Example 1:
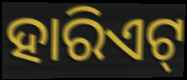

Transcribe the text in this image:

ହାରିଏଟ୍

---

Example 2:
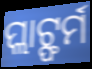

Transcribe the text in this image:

ପ୍ଲାଟ୍ଫର୍ମ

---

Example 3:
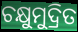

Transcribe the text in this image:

ଚକ୍ଷୁମୁଦ୍ରିତ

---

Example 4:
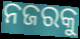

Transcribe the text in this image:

ନଜରକୁ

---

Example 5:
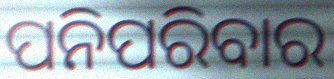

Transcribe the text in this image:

ପନିପରିବାର